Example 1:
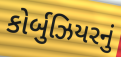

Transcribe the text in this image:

કોર્બુઝિયરનું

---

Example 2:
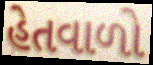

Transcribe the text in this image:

હેતવાળો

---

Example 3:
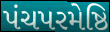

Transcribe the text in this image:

પંચપરમેષ્ઠિ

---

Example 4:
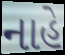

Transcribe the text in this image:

નાહે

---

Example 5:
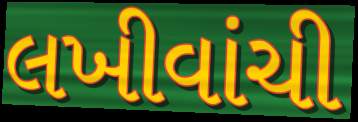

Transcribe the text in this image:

લખીવાંચી